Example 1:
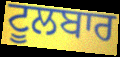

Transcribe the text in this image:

ਟੂਲਬਾਰ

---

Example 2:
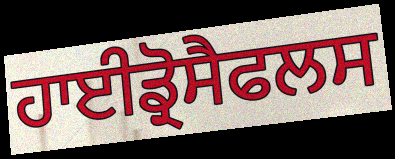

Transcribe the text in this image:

ਹਾਈਡ੍ਰੋਸੈਫਲਸ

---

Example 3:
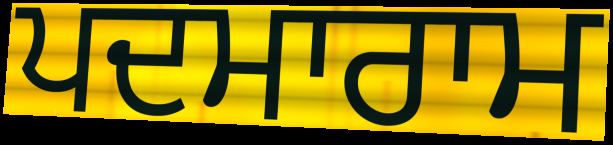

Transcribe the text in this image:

ਪਦਮਾਰਾਮ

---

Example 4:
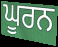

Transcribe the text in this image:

ਘੂਰਨ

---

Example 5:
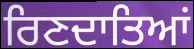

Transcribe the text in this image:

ਰਿਣਦਾਤਿਆਂ